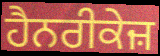
ਹੈਨਰੀਕੇਜ਼